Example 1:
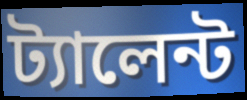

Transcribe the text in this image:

ট্যালেন্ট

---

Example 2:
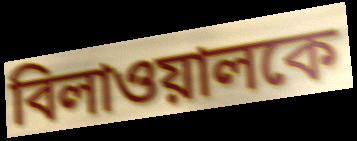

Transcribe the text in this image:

বিলাওয়ালকে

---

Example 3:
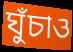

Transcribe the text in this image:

ঘুঁচাও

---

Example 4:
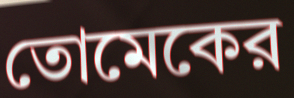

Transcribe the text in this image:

তোমেকের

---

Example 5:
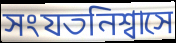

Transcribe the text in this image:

সংযতনিশ্বাসে